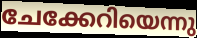
ചേക്കേറിയെന്നു